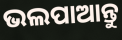
ଭଲପାଆନ୍ତୁ